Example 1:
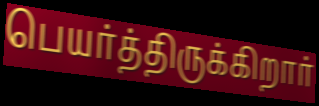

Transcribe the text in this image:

பெயர்த்திருக்கிறார்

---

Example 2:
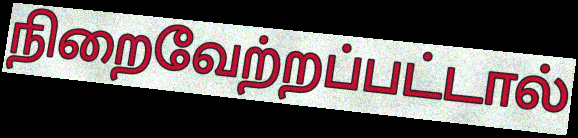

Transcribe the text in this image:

நிறைவேற்றப்பட்டால்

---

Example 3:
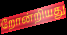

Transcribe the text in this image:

றோன்றியது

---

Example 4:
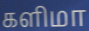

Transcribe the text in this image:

களிமா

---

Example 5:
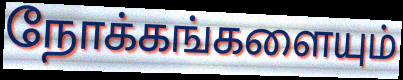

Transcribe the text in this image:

நோக்கங்களையும்